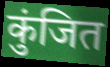
कुंजित